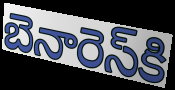
బెనారెస్‌కి